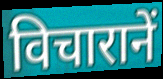
विचारानें